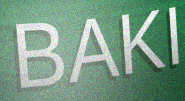
BAKI